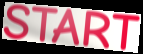
START